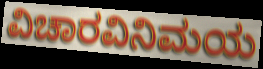
ವಿಚಾರವಿನಿಮಯ